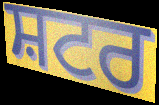
ਸ਼ਟਰ